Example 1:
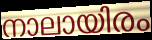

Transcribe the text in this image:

നാലായിരം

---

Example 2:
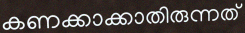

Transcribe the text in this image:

കണക്കാക്കാതിരുന്നത്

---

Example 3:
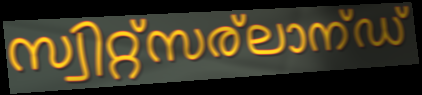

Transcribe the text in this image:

സ്വിറ്റ്സര്ലാന്ഡ്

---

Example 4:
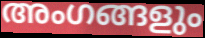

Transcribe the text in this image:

അംഗങ്ങളും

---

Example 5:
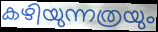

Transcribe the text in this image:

കഴിയുന്നത്രയും